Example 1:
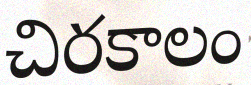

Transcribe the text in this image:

చిరకాలం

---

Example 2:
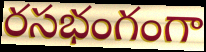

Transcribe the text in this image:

రసభంగంగా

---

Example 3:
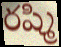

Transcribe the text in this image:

రష్మి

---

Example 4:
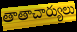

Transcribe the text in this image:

తాతాచార్యులు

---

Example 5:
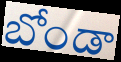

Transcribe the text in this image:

బోండా